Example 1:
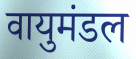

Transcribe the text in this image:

वायुमंडल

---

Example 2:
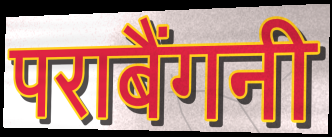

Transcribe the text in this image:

पराबैंगनी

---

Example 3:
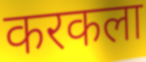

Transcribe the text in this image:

करकला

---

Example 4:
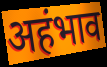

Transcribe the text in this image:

अहंभाव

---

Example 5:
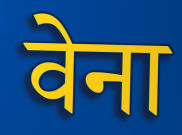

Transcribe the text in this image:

वेना